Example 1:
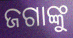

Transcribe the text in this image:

ଜଗାଙ୍କୁ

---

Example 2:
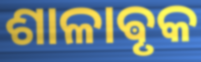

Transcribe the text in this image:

ଶାଳାଵୃକ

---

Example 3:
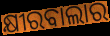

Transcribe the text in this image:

କ୍ଷୀରବାଲାର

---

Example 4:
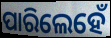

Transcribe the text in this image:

ପାରିଲେହେଁ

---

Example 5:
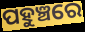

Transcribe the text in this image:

ପହୁଞ୍ଚରେ